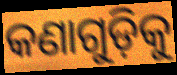
କଣାଗୁଡ଼ିକୁ